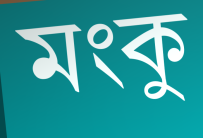
মংকু